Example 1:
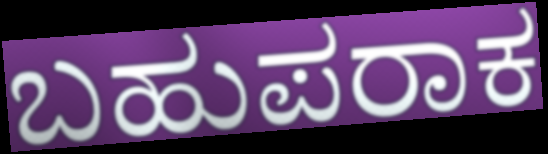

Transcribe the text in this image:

ಬಹುಪರಾಕ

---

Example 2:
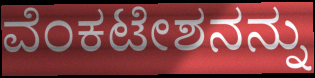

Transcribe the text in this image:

ವೆಂಕಟೇಶನನ್ನು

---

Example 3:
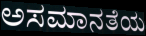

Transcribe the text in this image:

ಅಸಮಾನತೆಯ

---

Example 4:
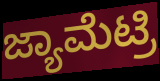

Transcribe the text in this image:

ಜ್ಯಾಮೆಟ್ರಿ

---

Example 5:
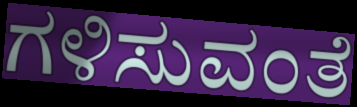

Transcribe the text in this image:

ಗಳಿಸುವಂತೆ